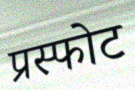
प्रस्फोट